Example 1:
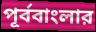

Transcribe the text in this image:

পূর্ববাংলার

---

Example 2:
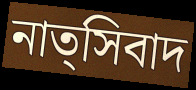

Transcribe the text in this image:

নাত্সিবাদ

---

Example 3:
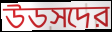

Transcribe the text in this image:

উডসদের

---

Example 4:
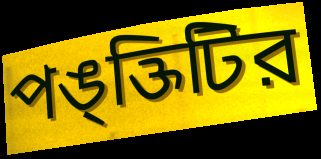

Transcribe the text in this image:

পঙ্‌ক্তিটির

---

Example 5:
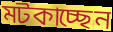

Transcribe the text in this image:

মটকাচ্ছেন